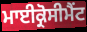
ਮਾਈਕ੍ਰੋਸੀਮੈਂਟ